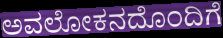
ಅವಲೋಕನದೊಂದಿಗೆ